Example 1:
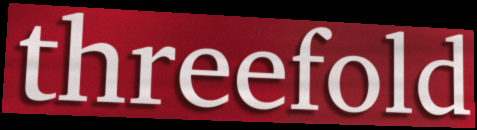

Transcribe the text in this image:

threefold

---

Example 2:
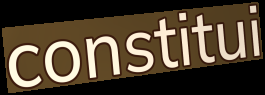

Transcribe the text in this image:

constitui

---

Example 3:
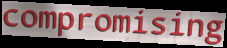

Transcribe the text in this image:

compromising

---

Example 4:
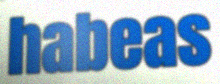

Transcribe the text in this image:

habeas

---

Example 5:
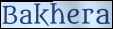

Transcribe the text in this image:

Bakhera